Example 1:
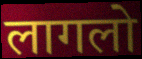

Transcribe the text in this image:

लागलो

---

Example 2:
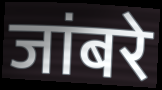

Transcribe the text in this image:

जांबरे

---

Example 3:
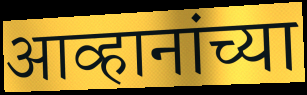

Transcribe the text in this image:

आव्हानांच्या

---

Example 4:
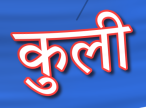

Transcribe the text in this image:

कुली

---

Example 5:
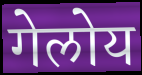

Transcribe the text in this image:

गेलोय